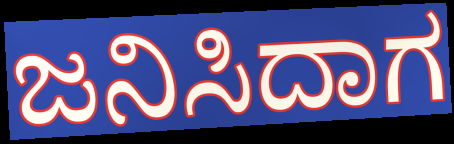
ಜನಿಸಿದಾಗ